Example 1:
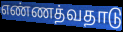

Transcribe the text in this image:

எண்ணத்வதாடு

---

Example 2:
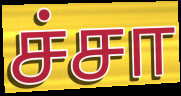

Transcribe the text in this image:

ச்சா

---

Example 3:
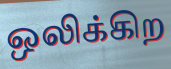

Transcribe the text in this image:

ஒலிக்கிற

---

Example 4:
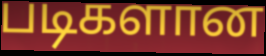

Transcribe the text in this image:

படிகளான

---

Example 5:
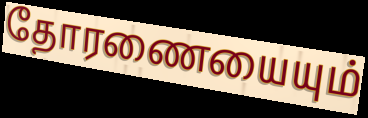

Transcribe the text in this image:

தோரணையையும்